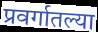
प्रवर्गातल्या